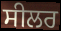
ਸੀਲਰ